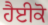
ਹੈਈਕੋ